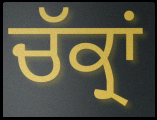
ਚੱਕ੍ਰਾਂ